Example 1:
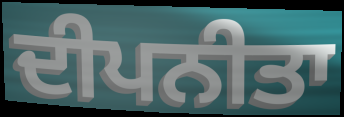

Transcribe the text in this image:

ਦੀਪਨੀਤਾ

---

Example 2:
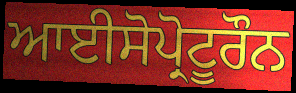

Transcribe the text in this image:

ਆਈਸੋਪ੍ਰੋਟੂਰੌਨ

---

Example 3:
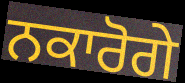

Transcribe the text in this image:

ਨਕਾਰੋਗੇ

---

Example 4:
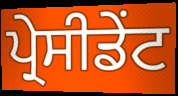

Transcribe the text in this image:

ਪ੍ਰੇਸੀਡੇਂਟ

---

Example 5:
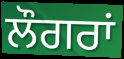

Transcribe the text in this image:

ਲੌਗਰਾਂ